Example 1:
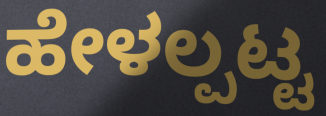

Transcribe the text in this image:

ಹೇಳಲ್ಪಟ್ಟ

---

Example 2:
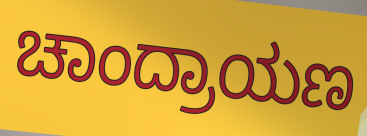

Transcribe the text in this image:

ಚಾಂದ್ರಾಯಣ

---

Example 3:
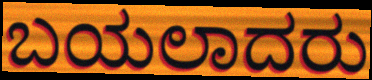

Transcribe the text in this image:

ಬಯಲಾದರು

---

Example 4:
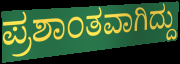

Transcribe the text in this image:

ಪ್ರಶಾಂತವಾಗಿದ್ದು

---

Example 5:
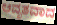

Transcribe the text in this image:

ಆವೃತವಾದ